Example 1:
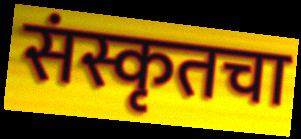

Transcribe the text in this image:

संस्कृतचा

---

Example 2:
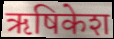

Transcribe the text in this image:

ऋषिकेश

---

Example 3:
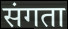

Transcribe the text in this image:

संगता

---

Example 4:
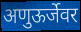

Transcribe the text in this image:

अणुऊर्जेवर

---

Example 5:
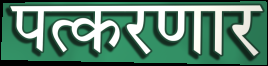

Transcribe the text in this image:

पत्करणार